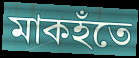
মাকহঁতে